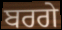
ਬਰਗੇ